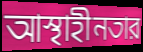
আস্থাহীনতার